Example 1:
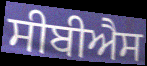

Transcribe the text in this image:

ਸੀਬੀਐਸ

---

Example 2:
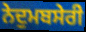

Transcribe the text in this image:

ਨੇਦੁਮਬਸੇਰੀ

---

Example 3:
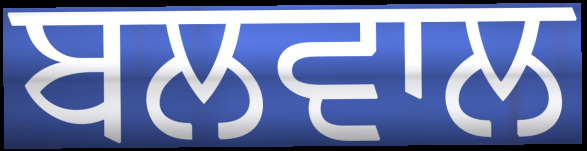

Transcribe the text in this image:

ਬਲਵਾਲ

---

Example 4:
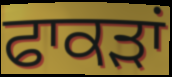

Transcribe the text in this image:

ਫਾਕੜਾਂ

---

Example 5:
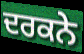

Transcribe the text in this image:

ਦਰਕਨੇ